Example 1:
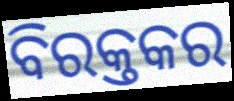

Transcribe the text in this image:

ବିରକ୍ତକର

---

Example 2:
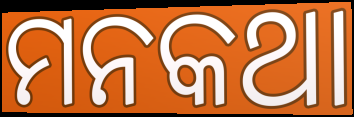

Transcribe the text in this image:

ମନକଥା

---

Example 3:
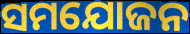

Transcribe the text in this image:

ସମଯୋଜନ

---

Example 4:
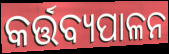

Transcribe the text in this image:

କର୍ତ୍ତବ୍ୟପାଳନ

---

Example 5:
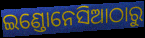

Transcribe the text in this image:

ଇଣ୍ଡୋନେସିଆଠାରୁ